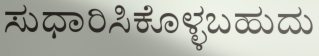
ಸುಧಾರಿಸಿಕೊಳ್ಳಬಹುದು